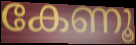
കേണൂ